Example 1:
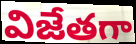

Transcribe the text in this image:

విజేతగా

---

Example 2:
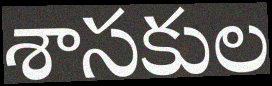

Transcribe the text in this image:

శాసకుల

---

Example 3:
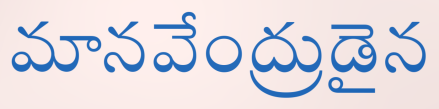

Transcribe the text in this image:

మానవేంద్రుడైన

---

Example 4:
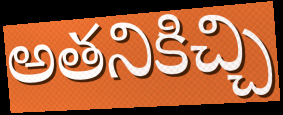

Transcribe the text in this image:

అతనికిచ్చి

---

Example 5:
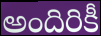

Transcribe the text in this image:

అందిరికీ